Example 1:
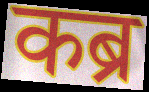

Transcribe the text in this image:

कब्र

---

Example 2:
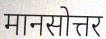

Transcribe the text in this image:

मानसोत्तर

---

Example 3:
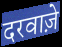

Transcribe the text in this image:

दरवाज़े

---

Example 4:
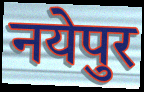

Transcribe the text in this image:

नयेपुर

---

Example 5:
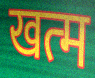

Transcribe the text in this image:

खत्‍म